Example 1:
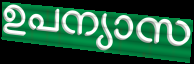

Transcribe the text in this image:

ഉപന്യാസ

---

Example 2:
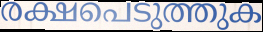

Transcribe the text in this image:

രക്ഷപെടുത്തുക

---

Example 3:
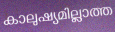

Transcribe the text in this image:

കാലുഷ്യമില്ലാത്ത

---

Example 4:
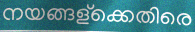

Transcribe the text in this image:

നയങ്ങള്ക്കെതിരെ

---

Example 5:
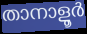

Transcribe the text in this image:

താനാളൂർ